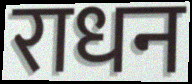
राधन